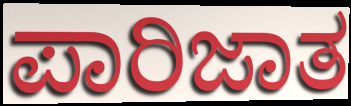
ಪಾರಿಜಾತ